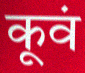
कूवं